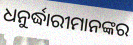
ଧନୁର୍ଦ୍ଧାରୀମାନଙ୍କର